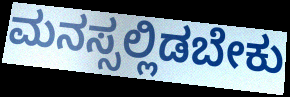
ಮನಸ್ಸಲ್ಲಿಡಬೇಕು